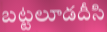
బట్టలూడదీసి